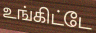
உங்கிட்டே